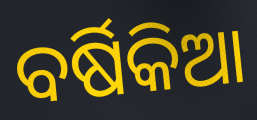
ବର୍ଷିକିଆ